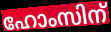
ഹോംസിന്